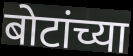
बोटांच्या